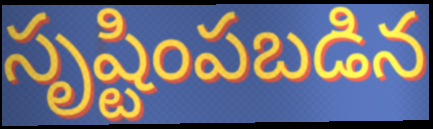
సృష్టింపబడిన